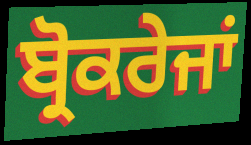
ਬ੍ਰੋਕਰੇਜਾਂ